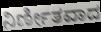
ನಿರ್ಣೀತವಾದ